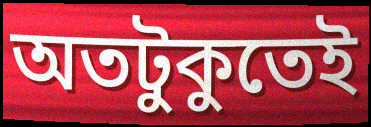
অতটুকুতেই